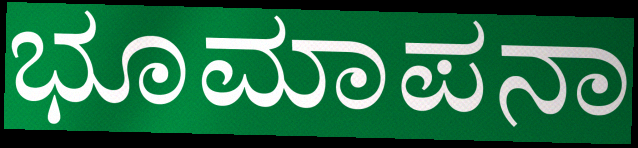
ಭೂಮಾಪನಾ